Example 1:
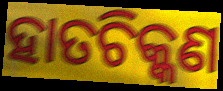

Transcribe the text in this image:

ହାତଚିକ୍କଣ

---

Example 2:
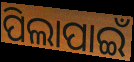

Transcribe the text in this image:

ପିଲାପାଇଁ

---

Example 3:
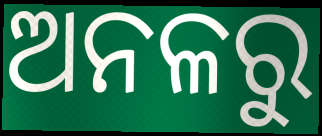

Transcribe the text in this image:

ଅନଳରୁ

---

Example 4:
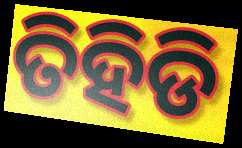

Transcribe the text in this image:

ତିହିଡି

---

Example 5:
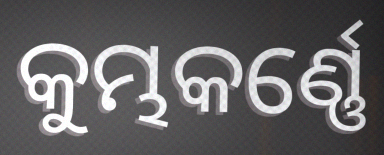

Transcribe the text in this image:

କୁମ୍ଭକର୍ଣ୍ଣେ